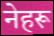
नेहरू